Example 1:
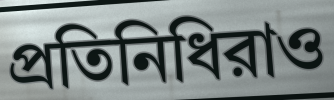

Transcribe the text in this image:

প্রতিনিধিরাও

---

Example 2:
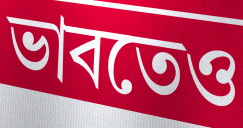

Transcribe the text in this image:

ভাবতেও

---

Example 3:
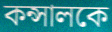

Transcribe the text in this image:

কন্সালকে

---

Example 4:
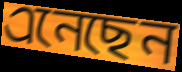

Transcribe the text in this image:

এনেছেন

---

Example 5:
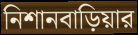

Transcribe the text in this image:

নিশানবাড়িয়ার